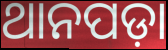
ଥାନପଡ଼ା